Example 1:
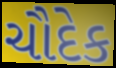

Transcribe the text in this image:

ચૌદેક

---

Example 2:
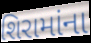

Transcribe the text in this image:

શિરામાંના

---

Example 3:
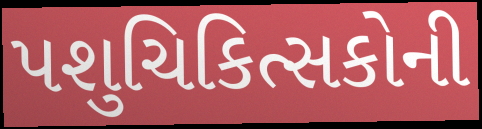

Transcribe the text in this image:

પશુચિકિત્સકોની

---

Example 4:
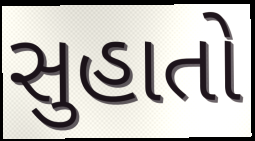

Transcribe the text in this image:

સુહાતો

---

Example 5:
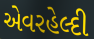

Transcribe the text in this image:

એવરહેલ્દી